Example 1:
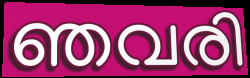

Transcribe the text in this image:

ഞവരി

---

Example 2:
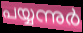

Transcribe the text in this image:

പയ്യന്നുർ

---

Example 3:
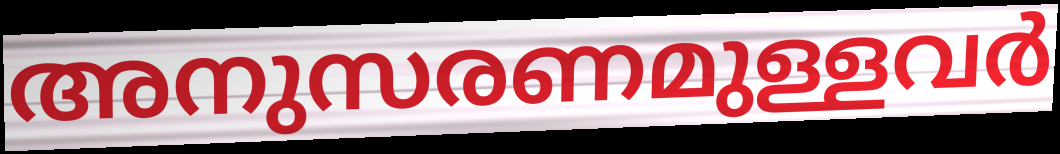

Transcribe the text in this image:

അനുസരണമുള്ളവർ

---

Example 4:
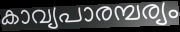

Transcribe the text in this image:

കാവ്യപാരമ്പര്യം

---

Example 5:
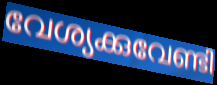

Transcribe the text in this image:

വേശ്യക്കുവേണ്ടി